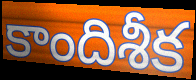
కాందిశీక